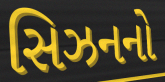
સિઝનનો